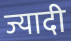
ज्यादी